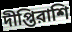
দীপ্তিরাশি